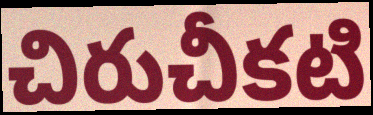
చిరుచీకటి